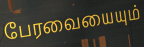
பேரவையையும்